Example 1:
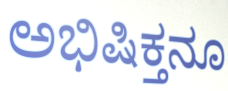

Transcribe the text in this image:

ಅಭಿಷಿಕ್ತನೂ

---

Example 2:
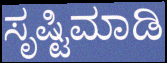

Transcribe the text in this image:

ಸೃಷ್ಟಿಮಾಡಿ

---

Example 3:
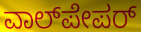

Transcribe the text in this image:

ವಾಲ್‌ಪೇಪರ್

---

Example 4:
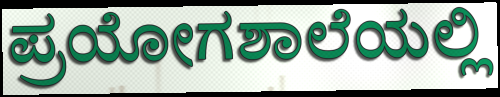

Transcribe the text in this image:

ಪ್ರಯೋಗಶಾಲೆಯಲ್ಲಿ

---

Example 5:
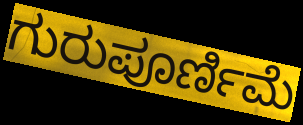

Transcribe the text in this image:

ಗುರುಪೂರ್ಣಿಮೆ